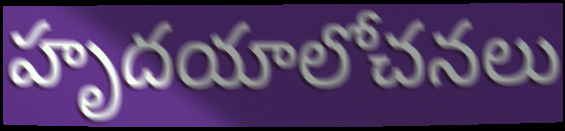
హృదయాలోచనలు